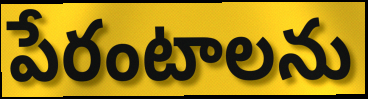
పేరంటాలను